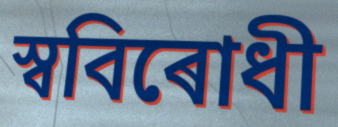
স্ববিৰোধী